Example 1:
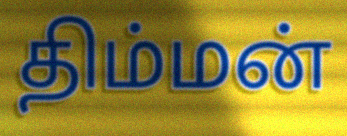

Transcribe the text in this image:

திம்மன்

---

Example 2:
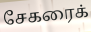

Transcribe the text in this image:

சேகரைக்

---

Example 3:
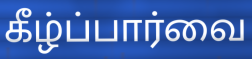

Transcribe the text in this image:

கீழ்ப்பார்வை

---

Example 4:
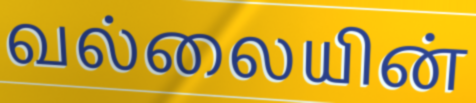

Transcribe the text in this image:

வல்லையின்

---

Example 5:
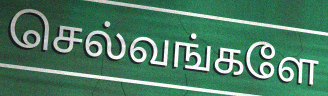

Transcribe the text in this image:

செல்வங்களே